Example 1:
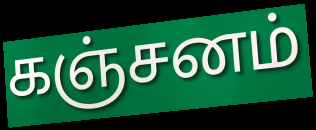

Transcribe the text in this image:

கஞ்சனம்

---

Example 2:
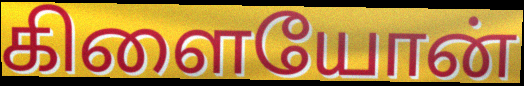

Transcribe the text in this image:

கிளையோன்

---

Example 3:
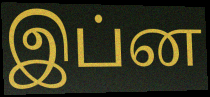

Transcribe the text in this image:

இப்ன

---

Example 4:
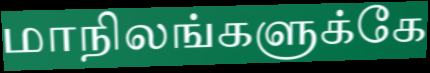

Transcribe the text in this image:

மாநிலங்களுக்கே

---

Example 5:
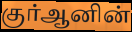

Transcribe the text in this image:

குர்ஆனின்